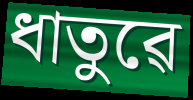
ধাতুৱে